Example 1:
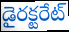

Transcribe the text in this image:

డైరక్టరేట్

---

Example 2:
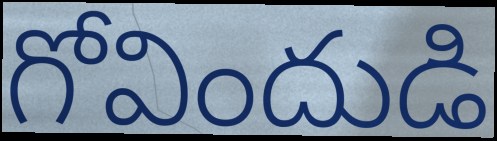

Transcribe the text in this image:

గోవిందుడి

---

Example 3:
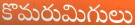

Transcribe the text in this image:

కొమరుమిగులు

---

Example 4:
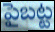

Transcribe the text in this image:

పైబట్ట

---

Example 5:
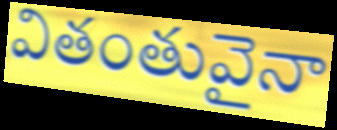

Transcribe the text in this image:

వితంతువైనా